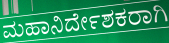
ಮಹಾನಿರ್ದೇಶಕರಾಗಿ